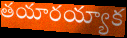
తయారయ్యాక